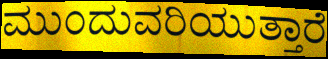
ಮುಂದುವರಿಯುತ್ತಾರೆ